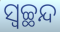
ସ୍ୱଚ୍ଛନ୍ଦ